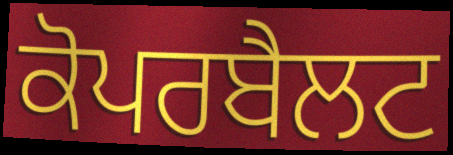
ਕੋਪਰਬੈਲਟ